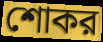
শোকর